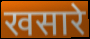
खसारे